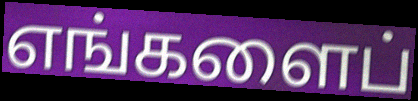
எங்களைப்